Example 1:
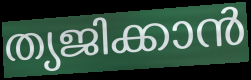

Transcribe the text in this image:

ത്യജിക്കാൻ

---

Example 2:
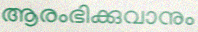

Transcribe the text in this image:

ആരംഭിക്കുവാനും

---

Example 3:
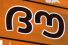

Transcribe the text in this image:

ദൗ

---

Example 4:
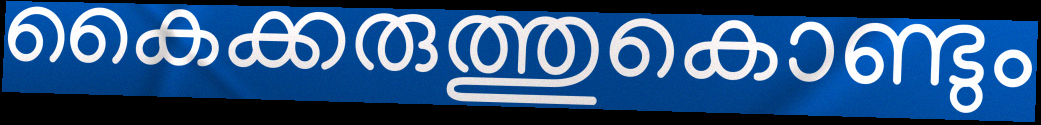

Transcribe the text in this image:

കൈക്കരുത്തുകൊണ്ടും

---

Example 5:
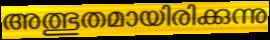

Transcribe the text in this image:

അത്ഭുതമായിരിക്കുന്നു